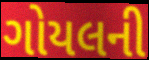
ગોયલની